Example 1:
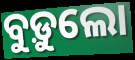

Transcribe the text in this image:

ବୁଡ଼ୁଲୋ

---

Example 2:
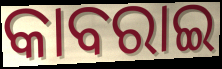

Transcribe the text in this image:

କାବରାଇ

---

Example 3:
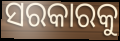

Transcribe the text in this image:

ସରକାରକୁ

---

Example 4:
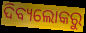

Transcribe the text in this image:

ଦିବ୍ୟଲୋକରୁ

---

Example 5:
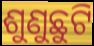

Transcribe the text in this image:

ଶୁଣୁଛୁଟି